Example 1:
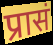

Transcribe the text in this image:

प्रासं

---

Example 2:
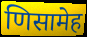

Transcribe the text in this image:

णिसामेह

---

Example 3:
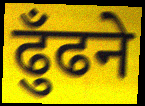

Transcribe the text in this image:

ढुँढने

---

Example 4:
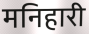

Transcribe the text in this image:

मनिहारी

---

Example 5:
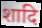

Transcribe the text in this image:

शादि